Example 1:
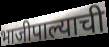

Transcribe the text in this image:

भाजीपाल्याची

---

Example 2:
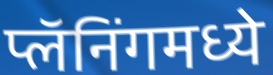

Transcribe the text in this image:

प्लॅनिंगमध्ये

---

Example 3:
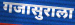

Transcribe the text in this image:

गजासुराला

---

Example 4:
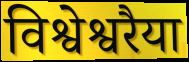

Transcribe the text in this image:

विश्वेश्वरैया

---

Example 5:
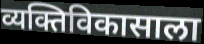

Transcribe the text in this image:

व्यक्तिविकासाला